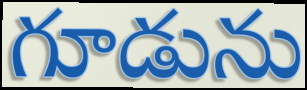
గూడును